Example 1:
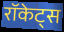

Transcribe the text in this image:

रॉकेट्स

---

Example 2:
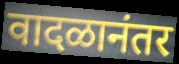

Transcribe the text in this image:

वादळानंतर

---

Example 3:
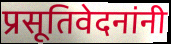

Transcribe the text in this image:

प्रसूतिवेदनांनी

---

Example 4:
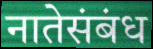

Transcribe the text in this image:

नातेसंबंध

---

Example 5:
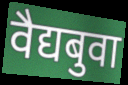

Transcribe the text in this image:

वैद्यबुवा